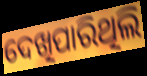
ଦେଖିପାରିଥିଲି